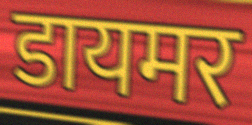
डायमर